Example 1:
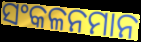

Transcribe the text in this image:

ସଂକଳନମାନ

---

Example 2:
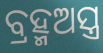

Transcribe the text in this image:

ବ୍ରହ୍ମଅସ୍ତ୍ର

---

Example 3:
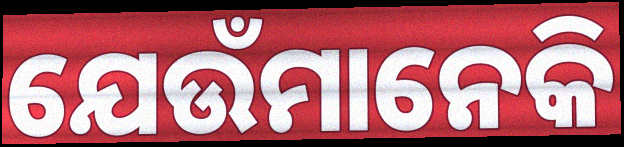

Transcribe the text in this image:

ଯେଉଁମାନେକି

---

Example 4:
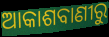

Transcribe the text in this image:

ଆକାଶବାଣୀରୁ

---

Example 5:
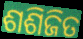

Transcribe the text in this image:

ଶଶିଜିତ